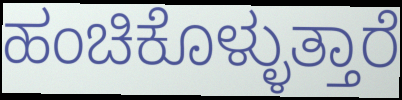
ಹಂಚಿಕೊಳ್ಳುತ್ತಾರೆ